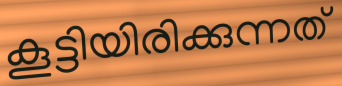
കൂട്ടിയിരിക്കുന്നത്